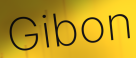
Gibon